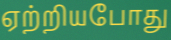
ஏற்றியபோது